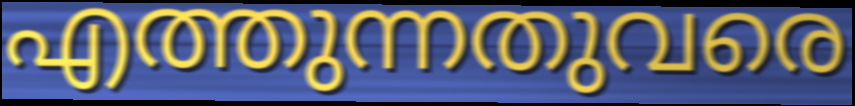
എത്തുന്നതുവരെ